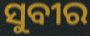
ସୁବୀର